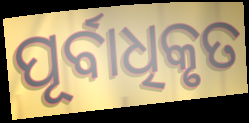
ପୂର୍ବାଧିକୃତ